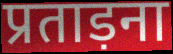
प्रताड़ना